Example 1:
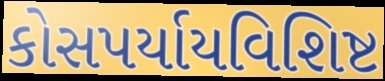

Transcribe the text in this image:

કોસપર્યાયવિશિષ્ટ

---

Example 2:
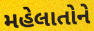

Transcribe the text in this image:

મહેલાતોને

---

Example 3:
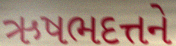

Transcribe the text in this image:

ઋષભદત્તને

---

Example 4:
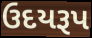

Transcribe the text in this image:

ઉદયરૂપ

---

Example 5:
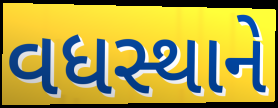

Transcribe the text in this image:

વધસ્થાને